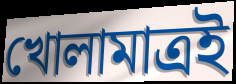
খোলামাত্রই